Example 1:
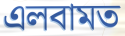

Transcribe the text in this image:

এলবামত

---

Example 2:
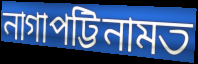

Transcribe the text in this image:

নাগাপট্টিনামত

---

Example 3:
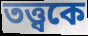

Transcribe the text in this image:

তত্ত্বকে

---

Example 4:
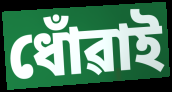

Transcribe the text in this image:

ধোঁৱাই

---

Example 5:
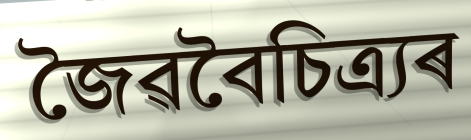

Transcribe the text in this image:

জৈৱবৈচিত্ৰ্যৰ